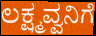
ಲಕ್ಷ್ಮವ್ವನಿಗೆ